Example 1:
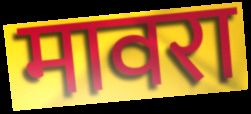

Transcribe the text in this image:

मावरा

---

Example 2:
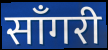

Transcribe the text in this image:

साँगरी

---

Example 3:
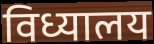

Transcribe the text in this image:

विध्यालय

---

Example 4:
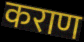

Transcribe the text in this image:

कराण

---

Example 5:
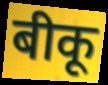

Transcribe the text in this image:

बीकू